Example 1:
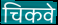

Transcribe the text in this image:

चिकवे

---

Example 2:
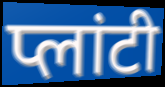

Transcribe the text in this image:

प्लांटी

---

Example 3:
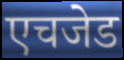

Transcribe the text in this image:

एचजेड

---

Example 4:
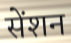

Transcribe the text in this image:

सेंशन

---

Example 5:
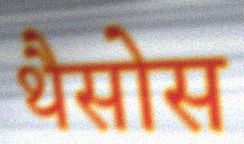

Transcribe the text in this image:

थैसोस